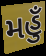
મહુઁ